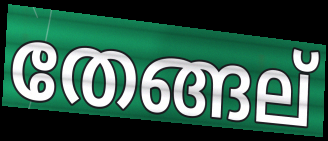
തേങ്ങല്